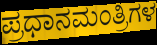
ಪ್ರಧಾನಮಂತ್ರಿಗಳ